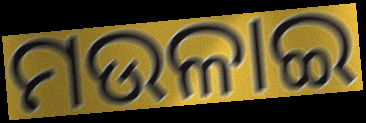
ମଉଳାଇ